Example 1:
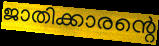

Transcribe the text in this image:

ജാതിക്കാരന്റെ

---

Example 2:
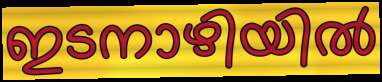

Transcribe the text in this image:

ഇടനാഴിയിൽ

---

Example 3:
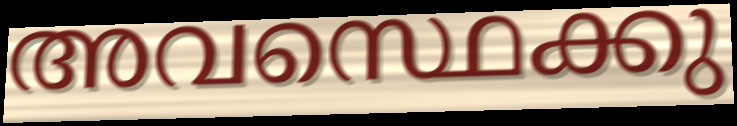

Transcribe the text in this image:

അവസ്ഥെക്കു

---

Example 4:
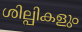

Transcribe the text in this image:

ശില്പികളും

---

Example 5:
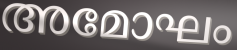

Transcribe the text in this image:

അമോഘം